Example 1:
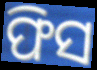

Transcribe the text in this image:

ଫିସ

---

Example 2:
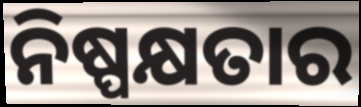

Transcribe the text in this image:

ନିଷ୍ପକ୍ଷତାର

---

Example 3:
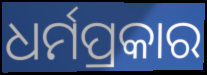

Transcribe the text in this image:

ଧର୍ମପ୍ରକାର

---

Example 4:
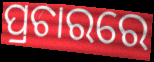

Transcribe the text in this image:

ପ୍ରଚାରରେ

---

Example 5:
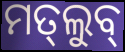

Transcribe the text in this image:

ମତ୍‌ଲୁବ୍